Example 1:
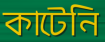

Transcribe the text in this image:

কাটেনি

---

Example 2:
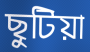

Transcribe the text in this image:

ছুটিয়া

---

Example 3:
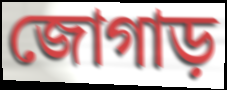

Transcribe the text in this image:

জোগাড়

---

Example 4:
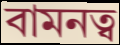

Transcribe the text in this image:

বামনত্ব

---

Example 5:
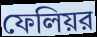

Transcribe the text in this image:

ফেলিয়র